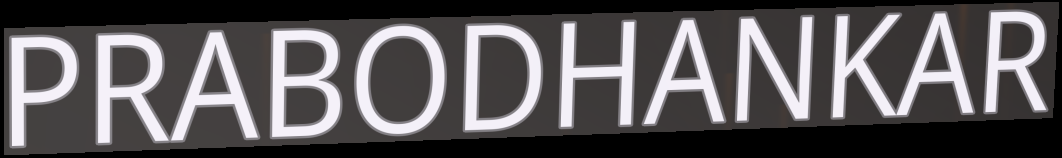
PRABODHANKAR